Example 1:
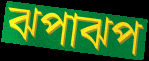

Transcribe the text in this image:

ঝপাঝপ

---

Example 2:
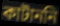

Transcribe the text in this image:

কাটাননি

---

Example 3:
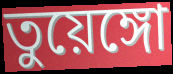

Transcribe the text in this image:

তুয়েঙ্গো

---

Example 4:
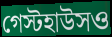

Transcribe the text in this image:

গেস্টহাউসও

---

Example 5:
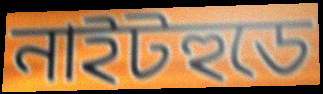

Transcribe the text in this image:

নাইটহুডে